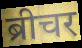
ब्रीचर